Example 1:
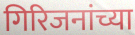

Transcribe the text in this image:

गिरिजनांच्या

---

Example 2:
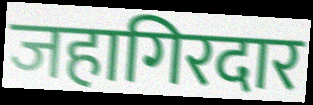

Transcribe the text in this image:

जहागिरदार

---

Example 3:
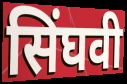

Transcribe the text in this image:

सिंघवी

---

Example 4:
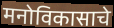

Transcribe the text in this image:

मनोविकासाचे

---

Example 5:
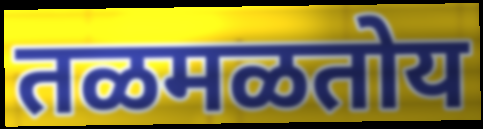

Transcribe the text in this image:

तळमळतोय